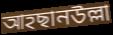
আহছানউল্লা